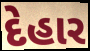
દેહાર